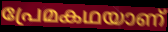
പ്രേമകഥയാണ്